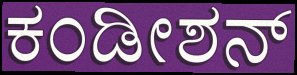
ಕಂಡೀಶನ್